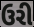
ઉરી